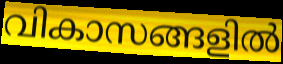
വികാസങ്ങളിൽ